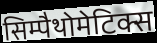
सिम्पैथोमेटिक्स